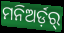
ମନିଅର୍ଡ଼ର୍